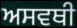
ਅਸਵਥੀ